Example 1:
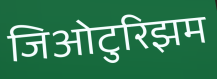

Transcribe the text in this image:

जिओटुरिझम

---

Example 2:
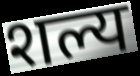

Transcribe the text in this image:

शल्य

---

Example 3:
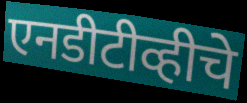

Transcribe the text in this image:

एनडीटीव्हीचे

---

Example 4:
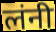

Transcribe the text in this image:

लंनी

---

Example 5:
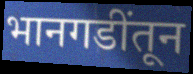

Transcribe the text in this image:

भानगडींतून